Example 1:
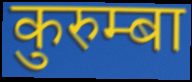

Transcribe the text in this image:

कुरुम्बा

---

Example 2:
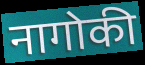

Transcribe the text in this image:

नागोकी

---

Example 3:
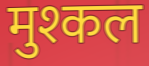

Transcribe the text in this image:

मुश्कल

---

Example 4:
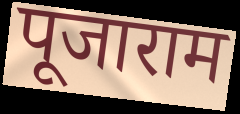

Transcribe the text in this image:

पूजाराम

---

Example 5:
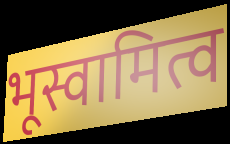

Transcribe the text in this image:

भूस्वामित्व